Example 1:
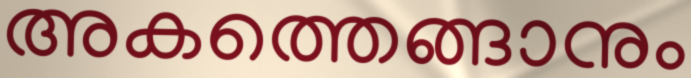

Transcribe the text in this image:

അകത്തെങ്ങാനും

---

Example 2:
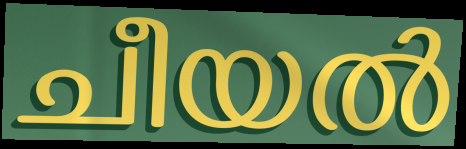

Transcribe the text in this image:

ചീയൽ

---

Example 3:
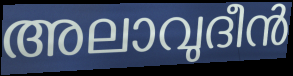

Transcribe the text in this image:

അലാവുദീൻ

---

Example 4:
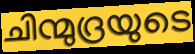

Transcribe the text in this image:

ചിന്മുദ്രയുടെ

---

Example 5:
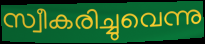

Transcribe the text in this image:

സ്വീകരിച്ചുവെന്നു